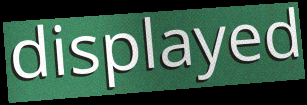
displayed